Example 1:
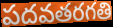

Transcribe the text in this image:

పదవతరగతి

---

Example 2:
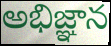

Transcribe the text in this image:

అభిజ్ఞాన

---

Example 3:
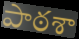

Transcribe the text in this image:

పాఠశా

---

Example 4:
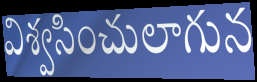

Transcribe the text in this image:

విశ్వసించులాగున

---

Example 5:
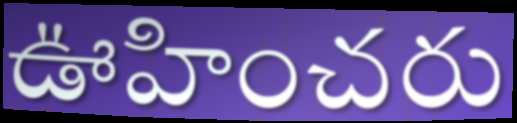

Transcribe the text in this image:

ఊహించరు